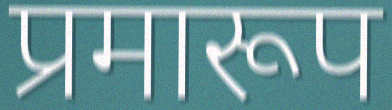
प्रमारूप